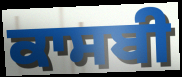
ਕਾਸਬੀ